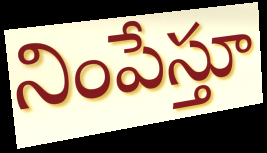
నింపేస్తూ